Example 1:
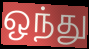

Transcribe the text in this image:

ஒந்து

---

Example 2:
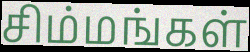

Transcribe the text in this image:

சிம்மங்கள்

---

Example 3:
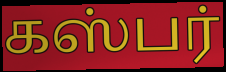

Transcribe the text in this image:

கஸ்பர்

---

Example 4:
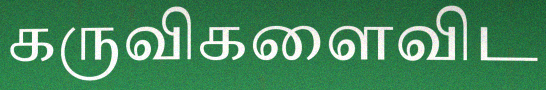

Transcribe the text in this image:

கருவிகளைவிட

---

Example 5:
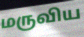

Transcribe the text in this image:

மருவிய